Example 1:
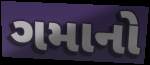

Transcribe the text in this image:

ગમાનો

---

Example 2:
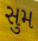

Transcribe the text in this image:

સુમ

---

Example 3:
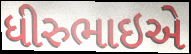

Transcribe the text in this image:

ધીરુભાઇએ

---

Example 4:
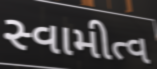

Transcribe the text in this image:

સ્વામીત્વ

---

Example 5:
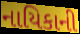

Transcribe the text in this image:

નાયિકાની